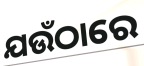
ଯଉଁଠାରେ